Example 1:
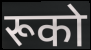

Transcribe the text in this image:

रूको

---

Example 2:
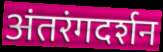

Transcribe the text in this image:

अंतरंगदर्शन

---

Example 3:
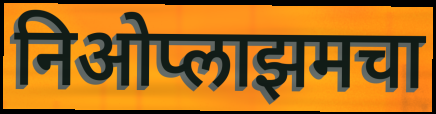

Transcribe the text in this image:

निओप्लाझमचा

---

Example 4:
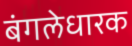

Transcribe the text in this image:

बंगलेधारक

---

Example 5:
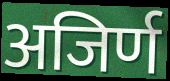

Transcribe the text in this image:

अजिर्ण